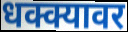
धक्क्यावर